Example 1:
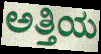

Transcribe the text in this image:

ಅತ್ತಿಯ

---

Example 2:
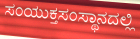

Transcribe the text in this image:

ಸಂಯುಕ್ತಸಂಸ್ಥಾನದಲ್ಲಿ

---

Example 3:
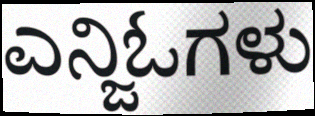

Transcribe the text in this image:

ಎನ್ಜಿಓಗಳು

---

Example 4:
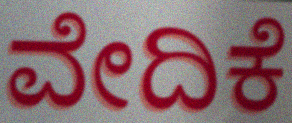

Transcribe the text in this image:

ವೇದಿಕೆ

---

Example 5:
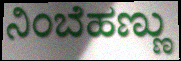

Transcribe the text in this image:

ನಿಂಬೆಹಣ್ಣು